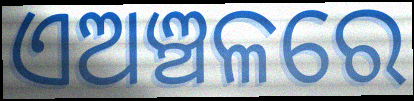
ଏଅଞ୍ଚଳରେ